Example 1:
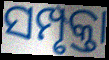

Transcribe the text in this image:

ସମ୍ପୃକ୍ତା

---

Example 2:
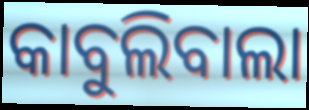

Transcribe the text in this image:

କାବୁଲିବାଲା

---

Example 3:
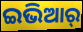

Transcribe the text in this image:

ଇଭିଆର୍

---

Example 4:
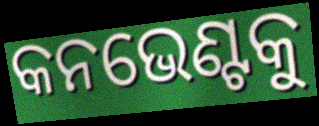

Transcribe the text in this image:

କନଭେଣ୍ଟକୁ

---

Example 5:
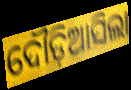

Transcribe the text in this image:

ଦୌଡ଼ିଆସିଲା